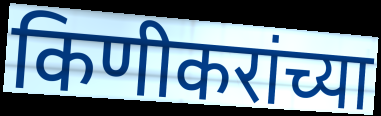
किणीकरांच्या